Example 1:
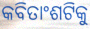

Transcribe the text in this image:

କବିତାଂଶଟିକୁ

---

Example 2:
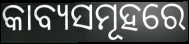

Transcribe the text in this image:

କାବ୍ୟସମୂହରେ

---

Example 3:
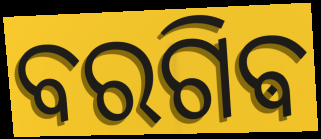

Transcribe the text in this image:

ବରଗିଵ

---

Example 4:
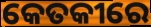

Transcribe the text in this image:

କେତକୀରେ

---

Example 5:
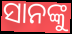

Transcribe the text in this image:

ସାନଙ୍କୁ